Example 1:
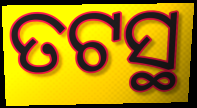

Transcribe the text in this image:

ତଟସ୍ଥ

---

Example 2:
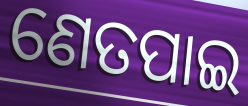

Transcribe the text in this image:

ଣେତପାଇ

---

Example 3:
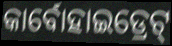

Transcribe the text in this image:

କାର୍ବୋହାଇଡ୍ରେଟ୍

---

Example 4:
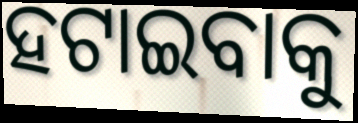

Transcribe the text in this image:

ହଟାଇବାକୁ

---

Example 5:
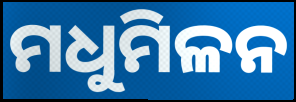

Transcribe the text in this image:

ମଧୁମିଳନ